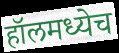
हॉलमध्येच